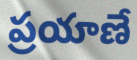
ప్రయాణే